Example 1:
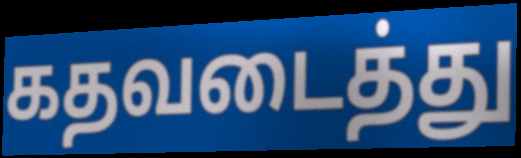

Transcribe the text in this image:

கதவடைத்து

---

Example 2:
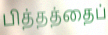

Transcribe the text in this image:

பித்தத்தைப்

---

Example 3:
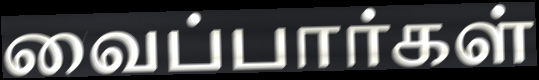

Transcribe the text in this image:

வைப்பார்கள்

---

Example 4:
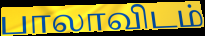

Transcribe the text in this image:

பாலாவிடம்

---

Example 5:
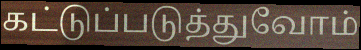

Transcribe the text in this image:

கட்டுப்படுத்துவோம்